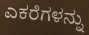
ಎಕರೆಗಳನ್ನು